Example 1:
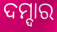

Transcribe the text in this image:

ଦମ୍ଦାର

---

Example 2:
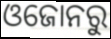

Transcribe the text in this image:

ଓଜୋନରୁ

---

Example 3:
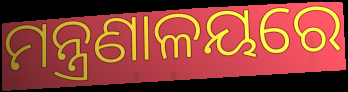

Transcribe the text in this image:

ମନ୍ତ୍ରଣାଳୟରେ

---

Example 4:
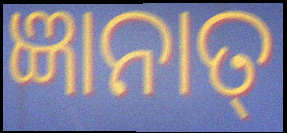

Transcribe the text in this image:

ଜ୍ଞାନାତ୍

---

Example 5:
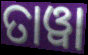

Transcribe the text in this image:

ତାୱା